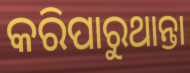
କରିପାରୁଥାନ୍ତା